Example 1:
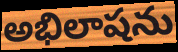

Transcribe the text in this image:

అభిలాషను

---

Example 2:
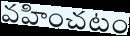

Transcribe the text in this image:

వహించటం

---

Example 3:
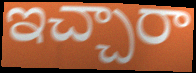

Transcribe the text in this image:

ఇచ్చారా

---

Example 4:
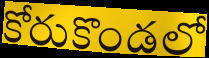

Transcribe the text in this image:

కోరుకొండలో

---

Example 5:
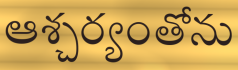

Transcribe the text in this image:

ఆశ్చర్యంతోను